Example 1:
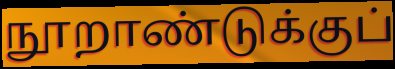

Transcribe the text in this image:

நூறாண்டுக்குப்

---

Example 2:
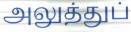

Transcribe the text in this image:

அலுத்துப்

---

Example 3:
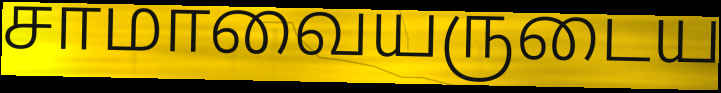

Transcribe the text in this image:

சாமாவையருடைய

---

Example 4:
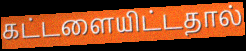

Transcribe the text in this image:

கட்டளையிட்டதால்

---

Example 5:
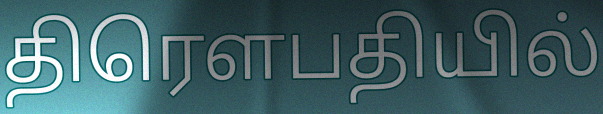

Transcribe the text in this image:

திரௌபதியில்